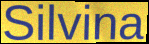
Silvina